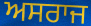
ਅਸਰਾਜ